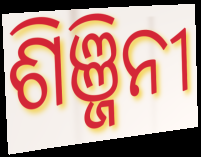
ଶିଞ୍ଜିନୀ